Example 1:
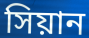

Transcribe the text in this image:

সিয়ান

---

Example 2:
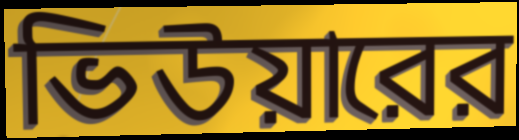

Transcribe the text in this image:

ভিউয়ারের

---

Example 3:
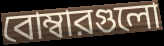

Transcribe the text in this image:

বোম্বারগুলো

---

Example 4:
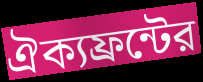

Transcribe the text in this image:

ঐক্যফ্রন্টের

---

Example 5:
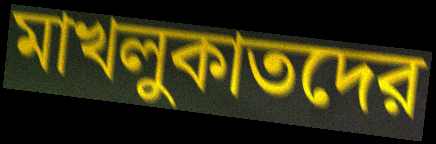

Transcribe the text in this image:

মাখলুকাতদের